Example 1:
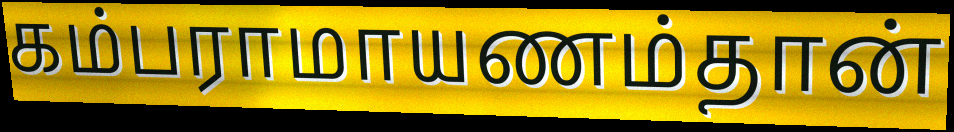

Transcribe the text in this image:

கம்பராமாயணம்தான்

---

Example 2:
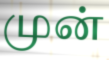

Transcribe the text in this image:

முன்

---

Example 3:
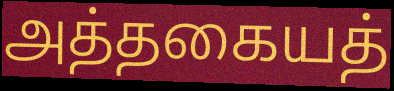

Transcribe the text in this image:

அத்தகையத்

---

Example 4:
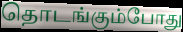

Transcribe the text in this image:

தொடங்கும்போது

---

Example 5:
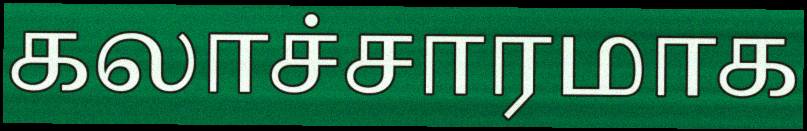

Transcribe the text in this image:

கலாச்சாரமாக